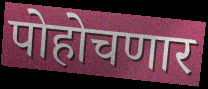
पोहोचणार